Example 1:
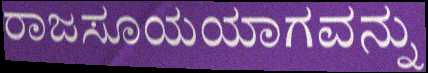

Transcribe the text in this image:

ರಾಜಸೂಯಯಾಗವನ್ನು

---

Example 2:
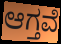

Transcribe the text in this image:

ಆಗ್ತವೆ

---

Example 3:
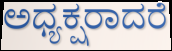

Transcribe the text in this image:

ಅಧ್ಯಕ್ಷರಾದರೆ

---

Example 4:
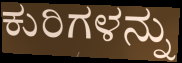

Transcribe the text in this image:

ಕುರಿಗಳನ್ನು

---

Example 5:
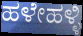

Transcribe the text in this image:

ಹಳೇಹಳ್ಳಿ